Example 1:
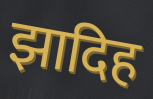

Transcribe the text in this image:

झादिह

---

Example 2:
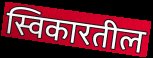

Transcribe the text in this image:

स्विकारतील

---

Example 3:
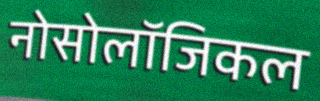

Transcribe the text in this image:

नोसोलॉजिकल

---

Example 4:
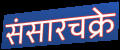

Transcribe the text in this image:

संसारचक्रे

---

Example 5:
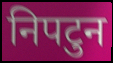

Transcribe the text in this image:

निपटुन